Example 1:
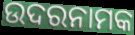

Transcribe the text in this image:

ଉଦରନାମକ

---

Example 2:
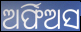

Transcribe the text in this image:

ଅର୍ଫିଅସ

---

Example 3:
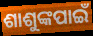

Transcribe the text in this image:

ଶାଶୁଙ୍କପାଇଁ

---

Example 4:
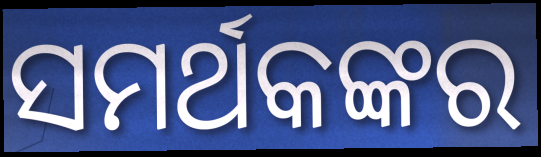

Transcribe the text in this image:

ସମର୍ଥକଙ୍କର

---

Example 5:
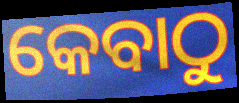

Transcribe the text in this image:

କେବାଠୁ